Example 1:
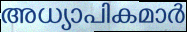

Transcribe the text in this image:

അധ്യാപികമാർ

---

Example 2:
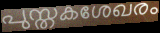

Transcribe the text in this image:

പുസ്തകശേഖരം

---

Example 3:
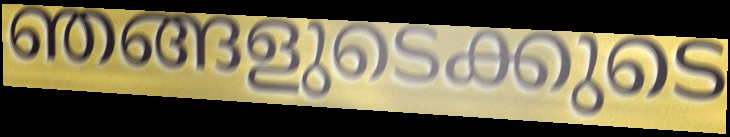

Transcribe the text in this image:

ഞങ്ങളുടെക്കുടെ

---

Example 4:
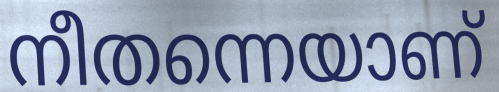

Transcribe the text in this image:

നീതന്നെയാണ്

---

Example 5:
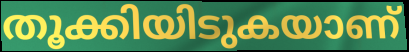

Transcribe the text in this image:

തൂക്കിയിടുകയാണ്